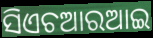
ସିଏଚଆରଆଇ